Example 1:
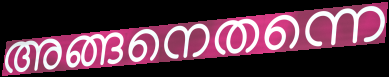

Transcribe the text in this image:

അങ്ങനെതന്നെ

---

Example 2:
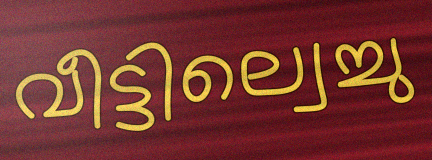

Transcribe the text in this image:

വീട്ടില്വെച്ചു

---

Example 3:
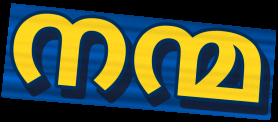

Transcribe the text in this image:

നന്മ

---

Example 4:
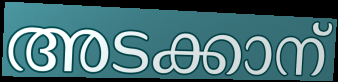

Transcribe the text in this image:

അടക്കാന്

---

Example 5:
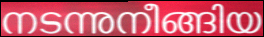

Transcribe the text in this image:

നടന്നുനീങ്ങിയ